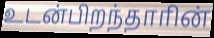
உடன்பிறந்தாரின்